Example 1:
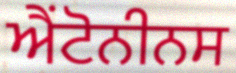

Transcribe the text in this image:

ਐਂਟੋਨੀਨਸ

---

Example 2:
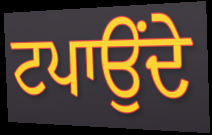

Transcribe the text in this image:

ਟਪਾਉਂਦੇ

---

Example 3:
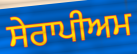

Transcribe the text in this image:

ਸੇਰਾਪੀਅਮ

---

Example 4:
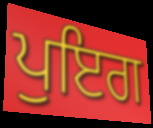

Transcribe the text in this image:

ਪੁਇਗ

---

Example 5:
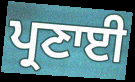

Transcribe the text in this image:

ਪ੍ਰਣਾਈ